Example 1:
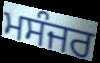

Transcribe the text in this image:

ਮਸੰਜਰ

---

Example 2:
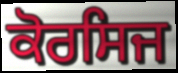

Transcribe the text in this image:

ਕੋਰਸਿਜ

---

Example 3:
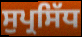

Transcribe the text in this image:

ਸੁਪ੍ਰਸਿੱਧ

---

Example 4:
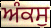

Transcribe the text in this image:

ਅੰਕਸੁ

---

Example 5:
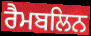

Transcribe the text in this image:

ਰੈਮਬਲਿਨ